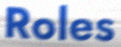
Roles